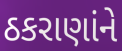
ઠકરાણાંને